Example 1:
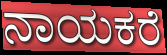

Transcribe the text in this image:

ನಾಯಕರೆ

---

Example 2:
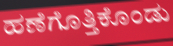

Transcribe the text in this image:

ಹಣೆಗೊತ್ತಿಕೊಂಡು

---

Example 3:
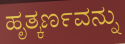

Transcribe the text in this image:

ಹೃತ್ಕರ್ಣವನ್ನು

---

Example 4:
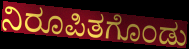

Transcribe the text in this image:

ನಿರೂಪಿತಗೊಂಡು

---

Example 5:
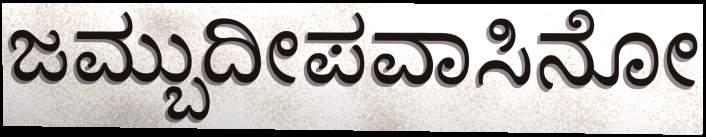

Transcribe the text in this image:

ಜಮ್ಬುದೀಪವಾಸಿನೋ